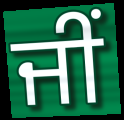
ਜੀਂ